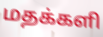
மதக்களி